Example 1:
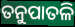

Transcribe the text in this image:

ତନୁପାତଳି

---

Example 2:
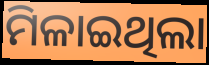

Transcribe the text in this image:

ମିଳାଇଥିଲା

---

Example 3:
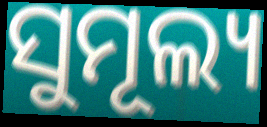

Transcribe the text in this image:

ସୁମୂଲ୍ୟ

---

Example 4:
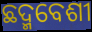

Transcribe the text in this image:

ଛଦ୍ମବେଶୀ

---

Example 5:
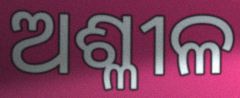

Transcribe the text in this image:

ଅଶ୍ଳୀଳ